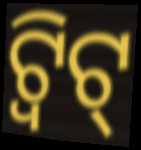
ଟ୍ୱିଟ୍